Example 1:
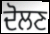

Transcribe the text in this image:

ਦੋਲਣ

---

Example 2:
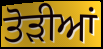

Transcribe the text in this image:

ਤੋਡ਼ੀਆਂ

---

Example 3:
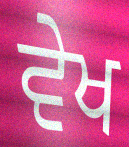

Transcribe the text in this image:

ਵੇਖ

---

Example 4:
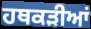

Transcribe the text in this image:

ਹਥਕੜੀਆਂ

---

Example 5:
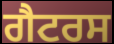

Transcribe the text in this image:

ਗੈਟਰਸ